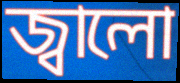
জ্বালো